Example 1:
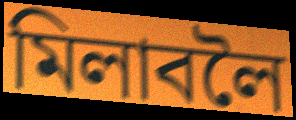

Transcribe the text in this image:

মিলাবলৈ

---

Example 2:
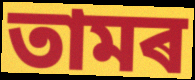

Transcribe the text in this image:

তামৰ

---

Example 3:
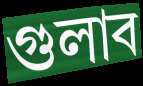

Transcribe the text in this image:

গুলাব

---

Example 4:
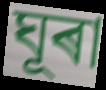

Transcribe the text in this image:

ঘূৰা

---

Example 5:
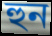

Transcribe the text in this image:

হুন